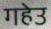
गहेउ